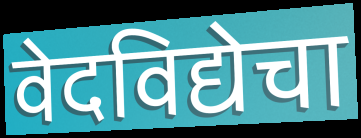
वेदविद्येचा